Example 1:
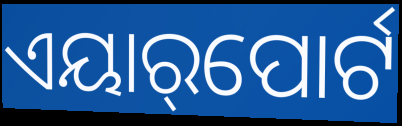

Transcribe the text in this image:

ଏୟାର୍‌ପୋର୍ଟ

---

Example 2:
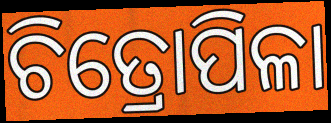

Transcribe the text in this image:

ଚିତ୍ରୋପିଳା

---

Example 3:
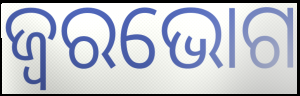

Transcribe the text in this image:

ଜ୍ୱରଭୋଗ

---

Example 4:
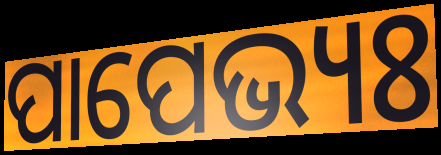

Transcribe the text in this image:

ପାପେଭ୍ୟଃ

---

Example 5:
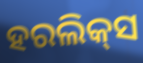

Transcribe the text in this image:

ହରଲିକ୍‌ସ